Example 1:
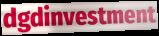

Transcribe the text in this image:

dgdinvestment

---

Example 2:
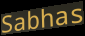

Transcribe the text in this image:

Sabhas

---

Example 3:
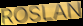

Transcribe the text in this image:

ROSLAN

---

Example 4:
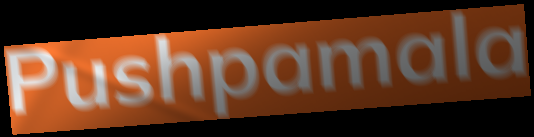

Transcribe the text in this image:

Pushpamala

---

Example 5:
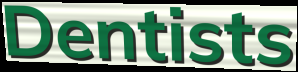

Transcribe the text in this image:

Dentists